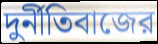
দুর্নীতিবাজের